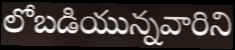
లోబడియున్నవారిని